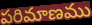
పరిమాణము